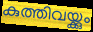
കുത്തിവയ്ക്കും